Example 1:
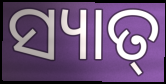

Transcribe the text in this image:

ସ୍ୟାତ୍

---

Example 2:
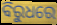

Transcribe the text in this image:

ବିରୁଧରେ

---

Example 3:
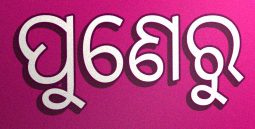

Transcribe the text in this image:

ପୁଣେରୁ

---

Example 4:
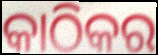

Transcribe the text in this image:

କାଠିକର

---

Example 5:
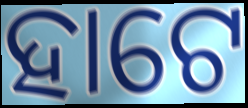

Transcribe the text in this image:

ହାଟେ